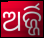
ଅର୍ଜ୍ଜି